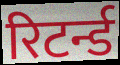
रिटर्न्ड